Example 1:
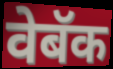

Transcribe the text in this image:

वेबॅक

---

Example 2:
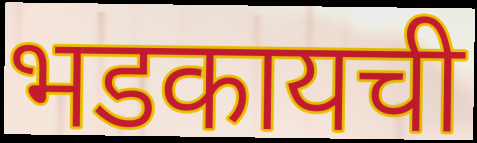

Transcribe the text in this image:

भडकायची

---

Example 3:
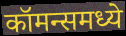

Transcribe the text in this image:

कॉमन्समध्ये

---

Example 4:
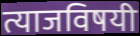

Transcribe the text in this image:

त्याजविषयी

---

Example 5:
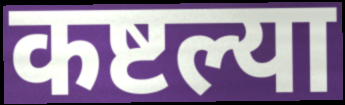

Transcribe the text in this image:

कष्टल्या